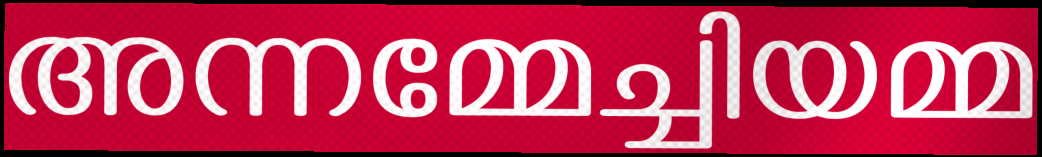
അന്നമ്മേച്ചിയമ്മ